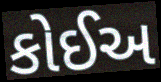
કોઈઅ